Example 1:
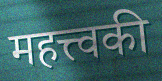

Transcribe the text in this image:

महत्त्वकी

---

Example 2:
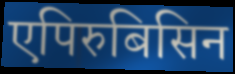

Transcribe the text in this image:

एपिरुबिसिन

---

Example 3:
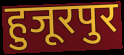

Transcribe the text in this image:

हुजूरपुर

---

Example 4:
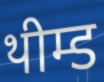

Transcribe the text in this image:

थीम्ड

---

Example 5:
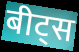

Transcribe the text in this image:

बीट्स